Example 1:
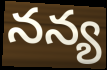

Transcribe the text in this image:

నన్య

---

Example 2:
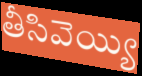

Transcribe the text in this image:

తీసివెయ్యి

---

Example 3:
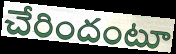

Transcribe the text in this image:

చేరిందంటూ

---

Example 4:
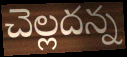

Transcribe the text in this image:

చెల్లదన్న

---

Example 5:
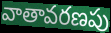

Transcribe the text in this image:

వాతావరణపు